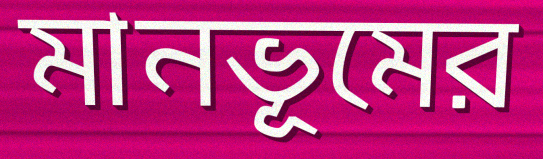
মানভূমের